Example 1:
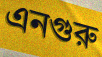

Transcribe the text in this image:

এনগুরু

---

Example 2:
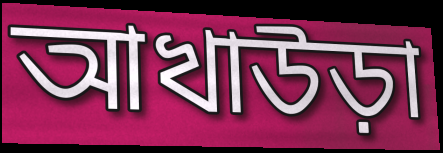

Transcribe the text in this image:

আখাউড়া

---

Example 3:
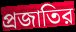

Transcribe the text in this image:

প্রজাতির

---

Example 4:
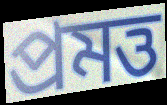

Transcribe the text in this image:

প্রমত্ত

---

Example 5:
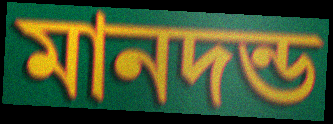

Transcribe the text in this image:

মানদন্ড